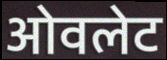
ओवलेट